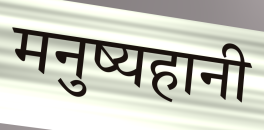
मनुष्यहानी